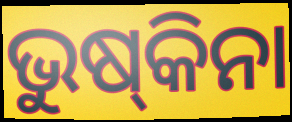
ଭୁଷ୍‌କିନା